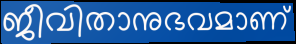
ജീവിതാനുഭവമാണ്